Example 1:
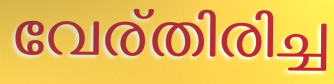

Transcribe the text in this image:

വേര്തിരിച്ച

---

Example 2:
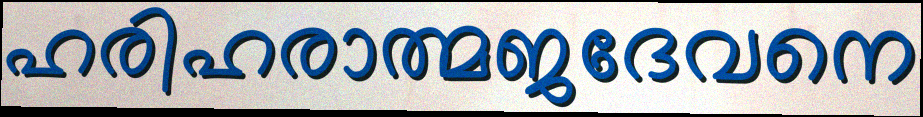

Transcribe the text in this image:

ഹരിഹരാത്മജദേവനെ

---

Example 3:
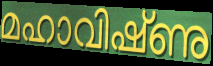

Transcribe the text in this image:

മഹാവിഷ്‌ണു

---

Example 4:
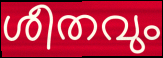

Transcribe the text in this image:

ശീതവും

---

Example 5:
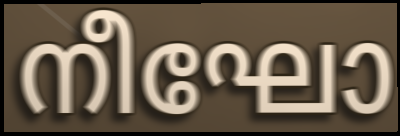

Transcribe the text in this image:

നീഘോ